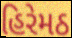
હિરેમઠ